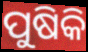
ପୁଷିକି